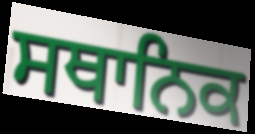
ਸਥਾਨਿਕ